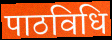
पाठविधि